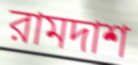
রামদাশ